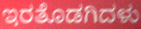
ಇರತೊಡಗಿದಳು